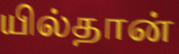
யில்தான்